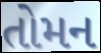
તોમન